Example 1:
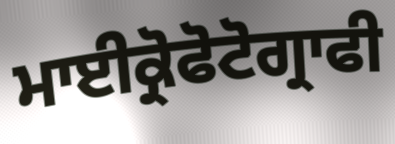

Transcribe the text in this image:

ਮਾਈਕ੍ਰੋਫੋਟੋਗ੍ਰਾਫੀ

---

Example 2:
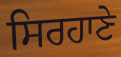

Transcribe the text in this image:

ਸਿਰਹਾਣੇ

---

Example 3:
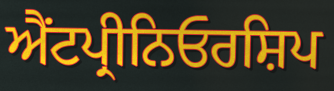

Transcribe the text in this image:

ਐਂਟਪ੍ਰੀਨਿਓਰਸ਼ਿਪ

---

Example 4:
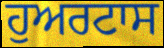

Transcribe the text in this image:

ਹੁਅਰਟਾਸ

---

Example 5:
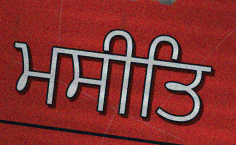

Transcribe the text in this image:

ਮਸੀਤਿ